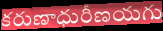
కరుణాధురీణయగు